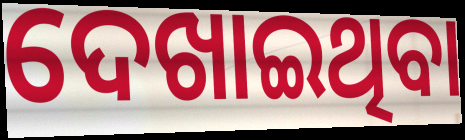
ଦେଖାଇଥିବା